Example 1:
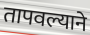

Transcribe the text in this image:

तापवल्याने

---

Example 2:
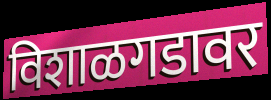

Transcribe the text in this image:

विशाळगडावर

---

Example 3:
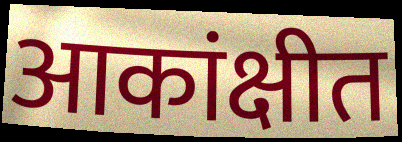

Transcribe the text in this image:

आकांक्षीत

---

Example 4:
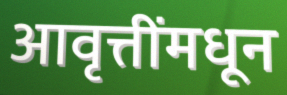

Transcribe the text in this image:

आवृत्तींमधून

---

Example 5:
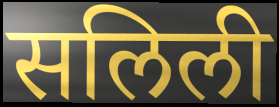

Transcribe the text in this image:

सलिली